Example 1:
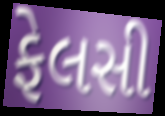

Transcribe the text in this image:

ફેલસી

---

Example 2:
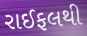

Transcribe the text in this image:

રાઈફલથી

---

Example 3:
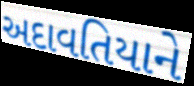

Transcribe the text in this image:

અદાવતિયાને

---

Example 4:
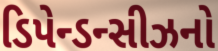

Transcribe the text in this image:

ડિપેન્ડન્સીઝનો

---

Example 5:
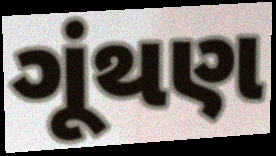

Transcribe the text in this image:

ગૂંથણ